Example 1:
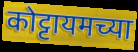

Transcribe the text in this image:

कोट्टायमच्या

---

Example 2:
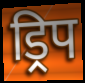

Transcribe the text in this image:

ड्रिप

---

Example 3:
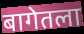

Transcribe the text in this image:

बागेतला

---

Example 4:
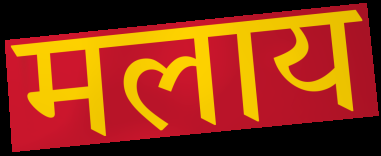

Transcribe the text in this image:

मलाय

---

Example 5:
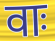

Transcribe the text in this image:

वाः